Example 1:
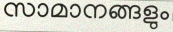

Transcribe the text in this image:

സാമാനങ്ങളും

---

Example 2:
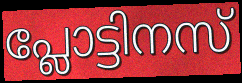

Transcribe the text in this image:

പ്ലോട്ടിനസ്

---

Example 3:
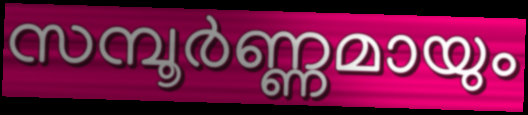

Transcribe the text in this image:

സമ്പൂർണ്ണമായും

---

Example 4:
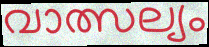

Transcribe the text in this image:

വാത്സല്യം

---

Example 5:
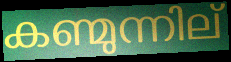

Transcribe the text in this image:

കണ്മുന്നില്